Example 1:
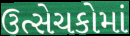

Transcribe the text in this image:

ઉત્સેચકોમાં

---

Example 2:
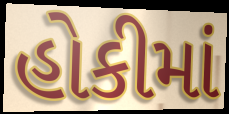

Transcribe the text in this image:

હોકીમાં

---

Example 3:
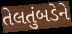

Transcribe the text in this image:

તેલતુંબડેને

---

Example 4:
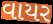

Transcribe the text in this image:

વાયર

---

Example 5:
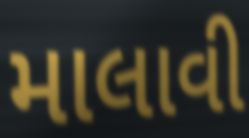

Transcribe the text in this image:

માલાવી